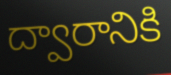
ద్వారానికి